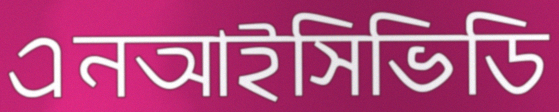
এনআইসিভিডি